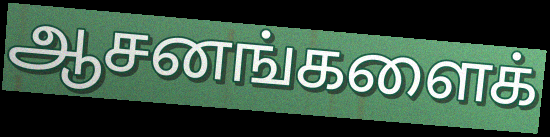
ஆசனங்களைக்